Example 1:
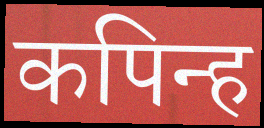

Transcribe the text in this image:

कपिन्ह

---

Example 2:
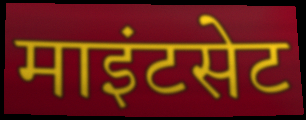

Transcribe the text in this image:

माइंटसेट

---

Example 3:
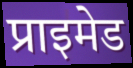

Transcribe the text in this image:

प्राइमेड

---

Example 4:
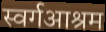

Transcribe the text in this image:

स्वर्गआश्रम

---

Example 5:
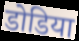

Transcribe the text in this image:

डोडिया